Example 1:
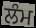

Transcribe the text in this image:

ਲੰਮ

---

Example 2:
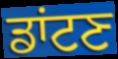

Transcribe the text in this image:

ਡਾਂਟਣ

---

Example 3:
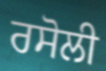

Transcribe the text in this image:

ਰਸੋਲੀ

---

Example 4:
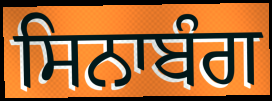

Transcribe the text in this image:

ਸਿਨਾਬੰਗ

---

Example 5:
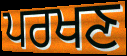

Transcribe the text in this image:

ਪਰਖਣ